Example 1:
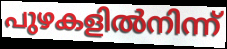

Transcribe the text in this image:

പുഴകളിൽനിന്ന്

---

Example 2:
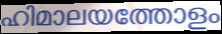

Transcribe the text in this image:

ഹിമാലയത്തോളം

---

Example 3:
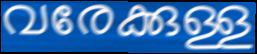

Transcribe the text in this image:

വരേക്കുള്ള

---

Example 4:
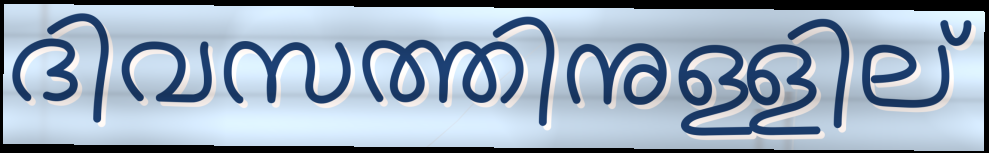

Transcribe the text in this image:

ദിവസത്തിനുള്ളില്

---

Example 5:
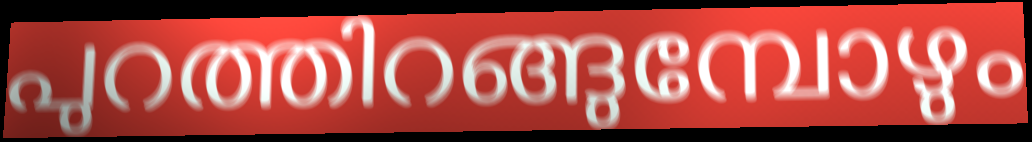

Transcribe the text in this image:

പുറത്തിറങ്ങുമ്പോഴും